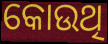
କୋଉଥି